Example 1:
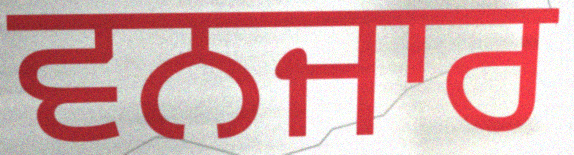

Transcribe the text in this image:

ਵਨਜਾਰ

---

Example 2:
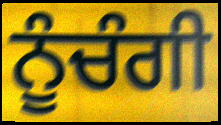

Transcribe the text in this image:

ਨੂੰਚੰਗੀ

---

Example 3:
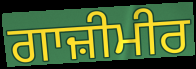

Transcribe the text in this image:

ਗਾਜ਼ੀਮੀਰ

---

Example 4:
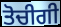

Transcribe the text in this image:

ਤੋਚੀਗੀ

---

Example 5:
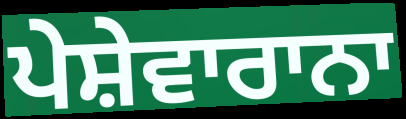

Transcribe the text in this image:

ਪੇਸ਼ੇਵਾਰਾਨਾ